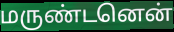
மருண்டனென்